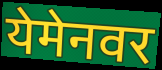
येमेनवर